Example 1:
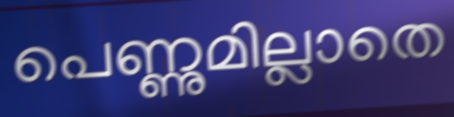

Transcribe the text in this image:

പെണ്ണുമില്ലാതെ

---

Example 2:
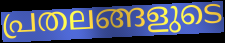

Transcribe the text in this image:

പ്രതലങ്ങളുടെ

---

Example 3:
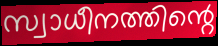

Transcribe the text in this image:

സ്വാധീനത്തിന്റെ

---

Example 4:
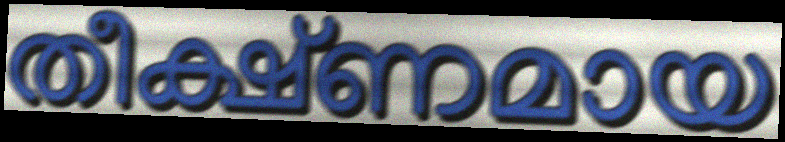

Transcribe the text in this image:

തീക്ഷ്ണമായ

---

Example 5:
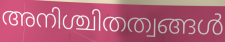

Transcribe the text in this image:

അനിശ്ചിതത്വങ്ങൾ